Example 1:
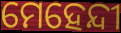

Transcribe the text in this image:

ମେହେନ୍ଦୀ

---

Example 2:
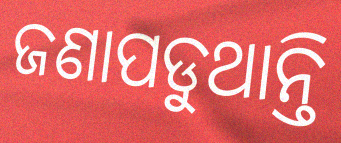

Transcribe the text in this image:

ଜଣାପଡୁଥାନ୍ତି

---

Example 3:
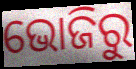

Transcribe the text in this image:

ଭୋଜିରୁ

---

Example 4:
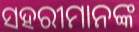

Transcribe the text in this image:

ସହରୀମାନଙ୍କ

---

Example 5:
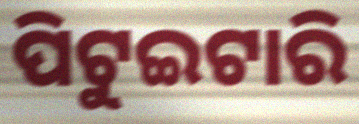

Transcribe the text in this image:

ପିଟୁଇଟାରି